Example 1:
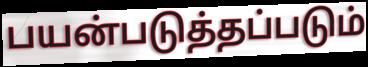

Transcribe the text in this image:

பயன்படுத்தப்படும்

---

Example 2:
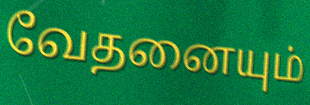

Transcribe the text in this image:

வேதனையும்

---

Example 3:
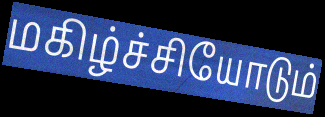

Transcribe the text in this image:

மகிழ்ச்சியோடும்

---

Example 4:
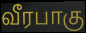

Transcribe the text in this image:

வீரபாகு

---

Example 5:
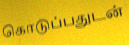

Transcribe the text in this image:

கொடுப்பதுடன்